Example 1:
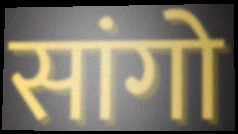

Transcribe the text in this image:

सांगो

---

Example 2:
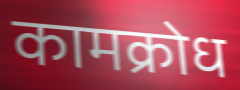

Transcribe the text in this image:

कामक्रोध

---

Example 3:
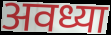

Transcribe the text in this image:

अवध्या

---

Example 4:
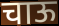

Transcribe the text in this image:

चाऊ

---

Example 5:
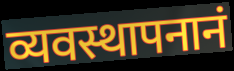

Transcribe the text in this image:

व्यवस्थापनानं